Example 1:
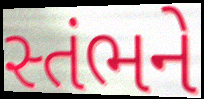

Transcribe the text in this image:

સ્તંભને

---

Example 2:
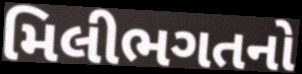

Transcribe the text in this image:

મિલીભગતનો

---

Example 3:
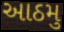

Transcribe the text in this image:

આઠમુ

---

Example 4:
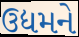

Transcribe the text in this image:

ઉદ્યમને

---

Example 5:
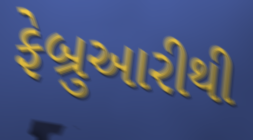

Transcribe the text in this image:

ફેબ્રુઆરીથી